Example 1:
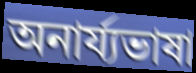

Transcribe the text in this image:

অনার্য্যভাষা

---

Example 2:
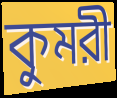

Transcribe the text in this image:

কুমরী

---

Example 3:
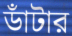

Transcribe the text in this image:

ডাঁটার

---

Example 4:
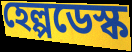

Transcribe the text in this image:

হেল্পডেস্ক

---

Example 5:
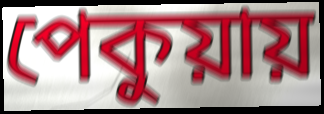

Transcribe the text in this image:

পেকুয়ায়